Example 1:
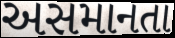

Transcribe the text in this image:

અસમાનતા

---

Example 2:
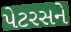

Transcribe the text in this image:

પેટરસને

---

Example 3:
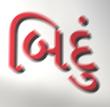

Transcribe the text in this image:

બિદું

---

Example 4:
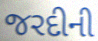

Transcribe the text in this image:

જરદીની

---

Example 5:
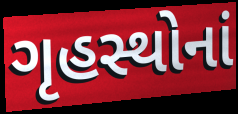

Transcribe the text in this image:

ગૃહસ્થોનાં